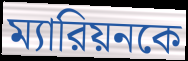
ম্যারিয়নকে